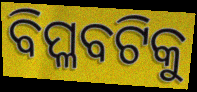
ବିପ୍ଳବଟିକୁ